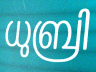
ധുബ്രി